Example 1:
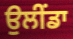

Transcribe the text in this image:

ਉਲੀਂਡਾ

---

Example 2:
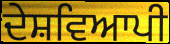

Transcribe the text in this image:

ਦੇਸ਼ਵਿਆਪੀ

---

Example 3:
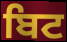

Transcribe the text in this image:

ਬਿਟ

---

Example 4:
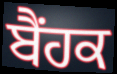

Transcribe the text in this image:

ਬੈਂਹਕ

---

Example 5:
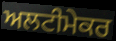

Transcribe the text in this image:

ਅਲਟੀਮੇਕਰ